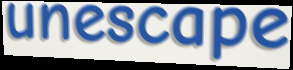
unescape